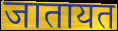
जातायत